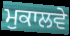
ਮੁਕਾਲਵੇ